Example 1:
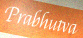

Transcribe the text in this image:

Prabhutva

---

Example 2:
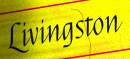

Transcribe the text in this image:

Livingston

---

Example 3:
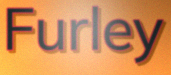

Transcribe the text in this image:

Furley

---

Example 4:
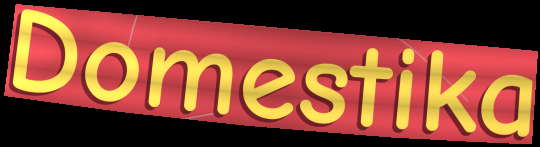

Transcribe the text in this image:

Domestika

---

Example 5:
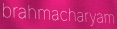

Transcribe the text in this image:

brahmacharyam